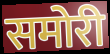
समोरी